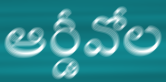
ఆర్డీవోల